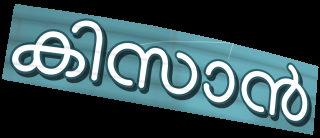
കിസാൻ